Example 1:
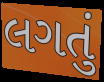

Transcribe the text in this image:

લગતું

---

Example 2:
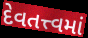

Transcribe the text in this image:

દેવતત્ત્વમાં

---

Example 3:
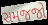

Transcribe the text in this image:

સમજજો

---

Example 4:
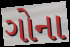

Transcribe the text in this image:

ગોના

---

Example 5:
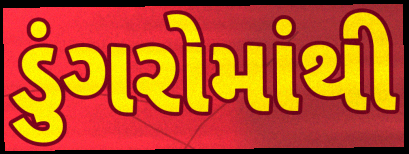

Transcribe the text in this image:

ડુંગરોમાંથી